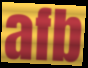
afb